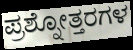
ಪ್ರಶ್ನೋತ್ತರಗಳ